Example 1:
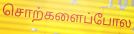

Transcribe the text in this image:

சொற்களைப்போல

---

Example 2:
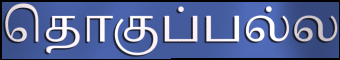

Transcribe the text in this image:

தொகுப்பல்ல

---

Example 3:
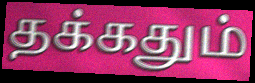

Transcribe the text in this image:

தக்கதும்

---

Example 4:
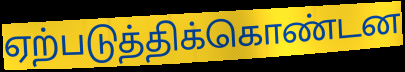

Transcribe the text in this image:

ஏற்படுத்திக்கொண்டன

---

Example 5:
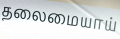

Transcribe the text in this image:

தலைமையாய்